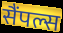
सैंपल्‍स